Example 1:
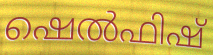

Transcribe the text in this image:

ഷെൽഫിഷ്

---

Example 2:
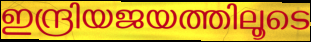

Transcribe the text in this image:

ഇന്ദ്രിയജയത്തിലൂടെ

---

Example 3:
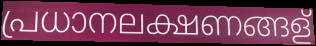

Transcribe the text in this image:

പ്രധാനലക്ഷണങ്ങള്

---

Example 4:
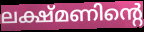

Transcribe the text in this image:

ലക്ഷ്മണിന്റെ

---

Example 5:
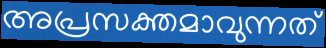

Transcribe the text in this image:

അപ്രസക്തമാവുന്നത്